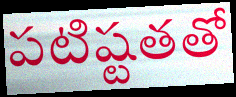
పటిష్టతతో